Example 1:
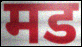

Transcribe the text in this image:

मड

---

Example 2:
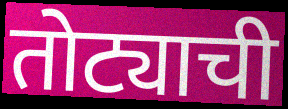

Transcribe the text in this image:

तोट्याची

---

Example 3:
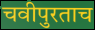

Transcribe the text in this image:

चवीपुरताच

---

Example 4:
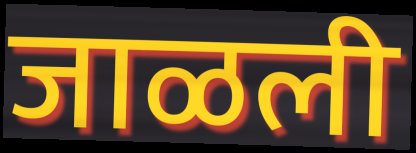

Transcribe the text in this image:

जाळली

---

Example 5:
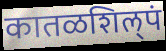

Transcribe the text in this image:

कातळशिल्पं